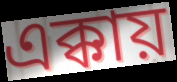
এক্কায়